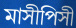
মাসীপিসী